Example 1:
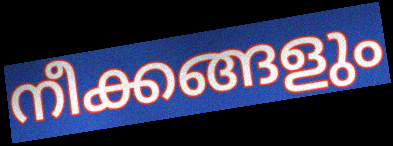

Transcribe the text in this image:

നീക്കങ്ങളും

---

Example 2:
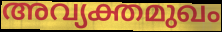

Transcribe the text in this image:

അവ്യക്തമുഖം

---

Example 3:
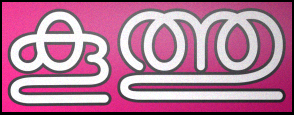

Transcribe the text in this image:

കൂത്തു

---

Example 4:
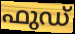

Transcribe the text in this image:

ഫുഡ്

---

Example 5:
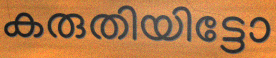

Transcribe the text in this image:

കരുതിയിട്ടോ